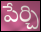
పేర్చి